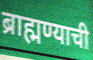
ब्राह्मण्याची